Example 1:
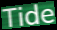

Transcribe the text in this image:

Tide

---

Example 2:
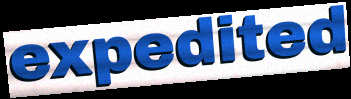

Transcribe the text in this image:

expedited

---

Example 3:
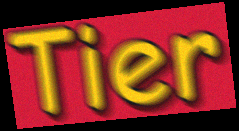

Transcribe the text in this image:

Tier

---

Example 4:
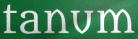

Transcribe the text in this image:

tanum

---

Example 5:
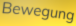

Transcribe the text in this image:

Bewegung